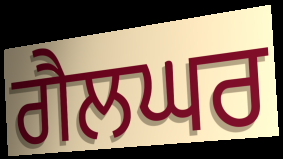
ਗੈਲਘਰ